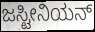
ಜಸ್ಟೀನಿಯನ್